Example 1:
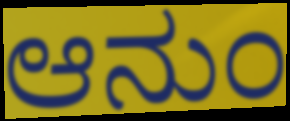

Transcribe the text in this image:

ಆನುಂ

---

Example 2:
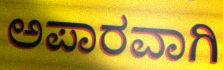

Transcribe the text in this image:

ಅಪಾರವಾಗಿ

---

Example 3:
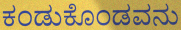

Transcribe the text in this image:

ಕಂಡುಕೊಂಡವನು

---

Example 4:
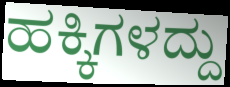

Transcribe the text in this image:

ಹಕ್ಕಿಗಳದ್ದು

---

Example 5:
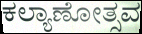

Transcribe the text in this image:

ಕಲ್ಯಾಣೋತ್ಸವ